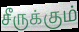
சீருக்கும்